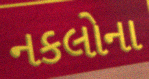
નકલોના